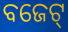
ବଜେଟ୍